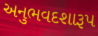
અનુભવદશારૂપ